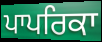
ਪਾਪਰਿਕਾ